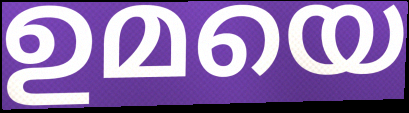
ഉമയെ